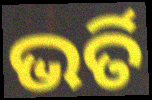
ଭର୍ତି